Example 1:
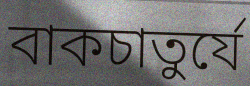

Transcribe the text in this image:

বাকচাতুর্যে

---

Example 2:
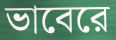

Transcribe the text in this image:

ভাবেরে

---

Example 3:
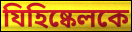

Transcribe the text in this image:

যিহিষ্কেলকে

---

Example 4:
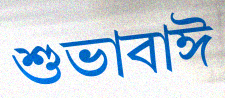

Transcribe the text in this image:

শুভাবাঈ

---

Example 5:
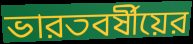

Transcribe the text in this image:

ভারতবর্ষীয়ের